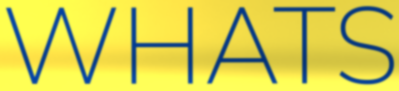
WHATS